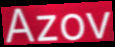
Azov